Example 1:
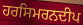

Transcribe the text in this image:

ਹਰਸਿਮਰਨਦੀਪ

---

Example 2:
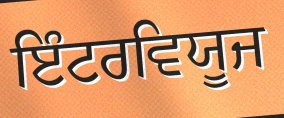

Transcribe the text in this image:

ਇੰਟਰਵਿਯੂਜ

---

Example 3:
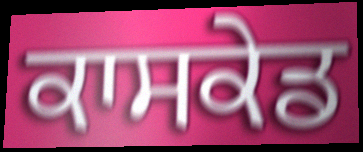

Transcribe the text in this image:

ਕਾਸਕੇਡ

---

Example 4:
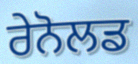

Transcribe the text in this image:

ਰੇਨੋਲਡ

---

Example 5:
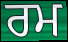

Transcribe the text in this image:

ਰਮ